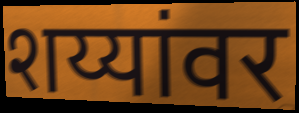
शय्यांवर